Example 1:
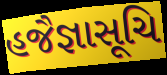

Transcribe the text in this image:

હજૈજ્ઞાસૂચિ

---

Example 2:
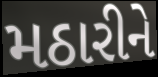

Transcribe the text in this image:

મઠારીને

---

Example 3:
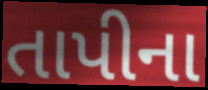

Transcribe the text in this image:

તાપીના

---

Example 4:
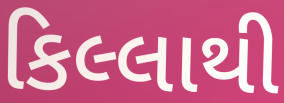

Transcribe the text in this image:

કિલ્લાથી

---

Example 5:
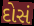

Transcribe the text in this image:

દોસં